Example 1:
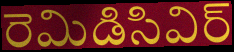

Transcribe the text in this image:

రెమిడిసివిర్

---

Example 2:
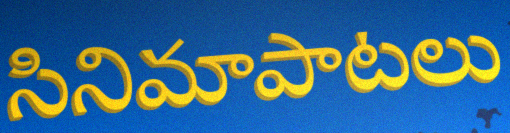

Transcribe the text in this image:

సినిమాపాటలు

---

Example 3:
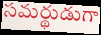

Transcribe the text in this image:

సమర్థుడుగా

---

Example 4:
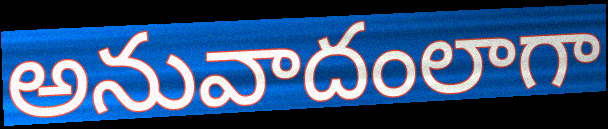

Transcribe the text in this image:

అనువాదంలాగా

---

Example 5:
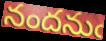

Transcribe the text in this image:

నందనుఁ